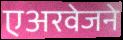
एअरवेजने